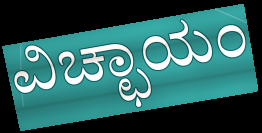
ವಿಚ್ಛಾಯಂ